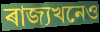
ৰাজ্যখনেও